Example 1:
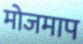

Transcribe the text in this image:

मोजमाप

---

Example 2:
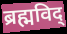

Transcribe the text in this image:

ब्रह्मविद्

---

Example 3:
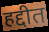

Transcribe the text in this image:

हद्दीत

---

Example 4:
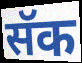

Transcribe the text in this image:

सॅक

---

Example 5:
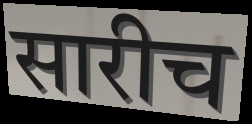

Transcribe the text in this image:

सारीच